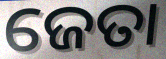
ଜେତା